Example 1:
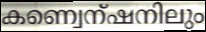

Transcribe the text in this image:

കണ്വെന്ഷനിലും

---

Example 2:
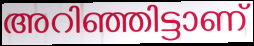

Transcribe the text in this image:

അറിഞ്ഞിട്ടാണ്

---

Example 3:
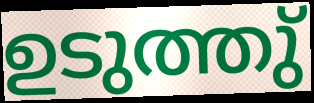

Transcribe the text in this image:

ഉടുത്തു്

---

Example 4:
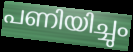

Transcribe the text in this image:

പണിയിച്ചും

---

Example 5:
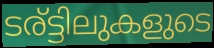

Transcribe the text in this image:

ടര്ട്ടിലുകളുടെ